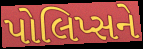
પોલિપ્સને